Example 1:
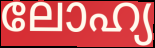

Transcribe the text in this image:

ലോഹ്യ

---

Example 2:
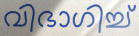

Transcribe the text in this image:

വിഭാഗിച്ച്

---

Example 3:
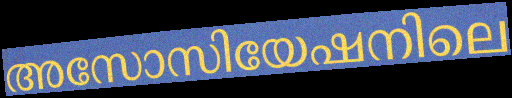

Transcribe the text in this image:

അസോസിയേഷനിലെ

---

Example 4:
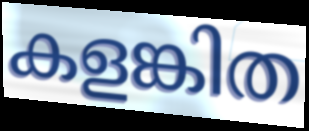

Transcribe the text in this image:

കളങ്കിത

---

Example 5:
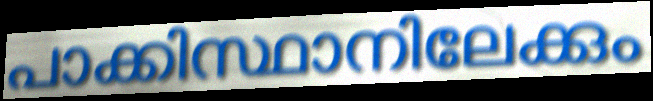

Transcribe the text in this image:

പാക്കിസ്ഥാനിലേക്കും